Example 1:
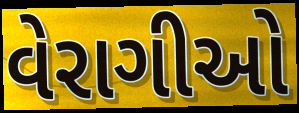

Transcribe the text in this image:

વેરાગીઓ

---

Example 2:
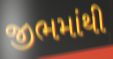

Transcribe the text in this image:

જીભમાંથી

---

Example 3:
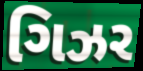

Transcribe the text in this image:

ગિઝર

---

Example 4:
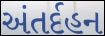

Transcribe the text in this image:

અંતર્દહન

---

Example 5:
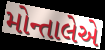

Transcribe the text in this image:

મોન્તાલેએ